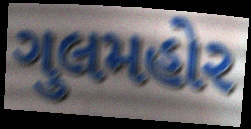
ગુલમહોર